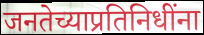
जनतेच्याप्रतिनिधींना